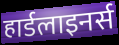
हार्डलाइनर्स